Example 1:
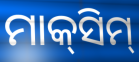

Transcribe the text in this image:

ମାକ୍‍ସିମ୍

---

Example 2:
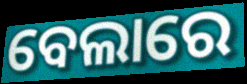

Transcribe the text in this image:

ବେଲାରେ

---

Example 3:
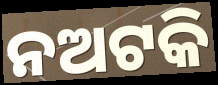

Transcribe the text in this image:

ନଅଟକି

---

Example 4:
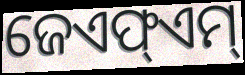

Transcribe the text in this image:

ଜେଏଫ୍ଏମ୍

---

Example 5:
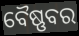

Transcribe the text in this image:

ବୈଷ୍ଣବର